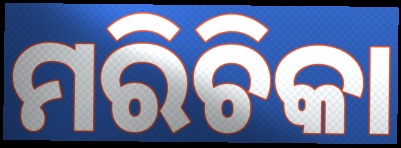
ମରିଚିକା